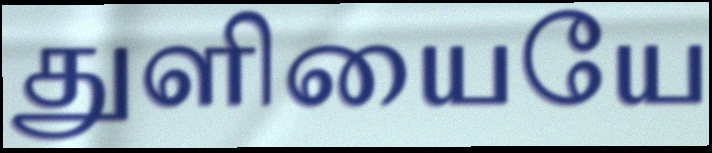
துளியையே